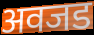
अवजड